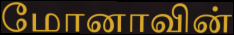
மோனாவின்